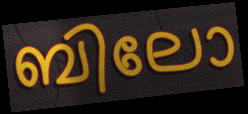
ബിലോ